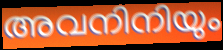
അവനിനിയും